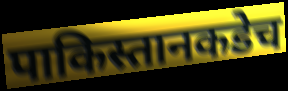
पाकिस्तानकडेच